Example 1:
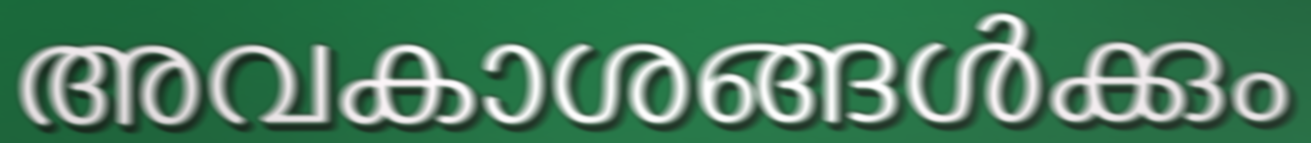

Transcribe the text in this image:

അവകാശങ്ങൾക്കും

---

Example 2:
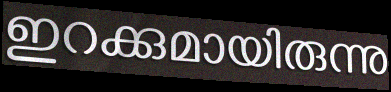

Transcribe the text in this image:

ഇറക്കുമായിരുന്നു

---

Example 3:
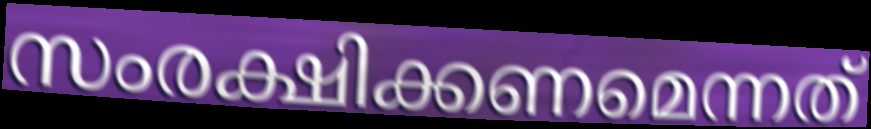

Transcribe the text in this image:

സംരക്ഷിക്കണമെന്നത്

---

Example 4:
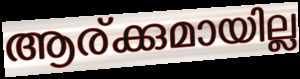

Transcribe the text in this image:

ആര്ക്കുമായില്ല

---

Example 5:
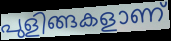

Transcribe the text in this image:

പുളിങ്ങകളാണ്